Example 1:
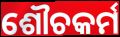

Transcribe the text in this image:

ଶୌଚକର୍ମ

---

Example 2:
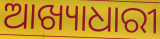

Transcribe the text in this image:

ଆଖ୍ୟାଧାରୀ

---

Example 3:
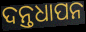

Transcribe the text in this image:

ଦନ୍ତଧାପନ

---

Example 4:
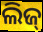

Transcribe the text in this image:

ଲିଜ୍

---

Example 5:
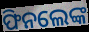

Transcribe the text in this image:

ଫିନଲେଙ୍କ